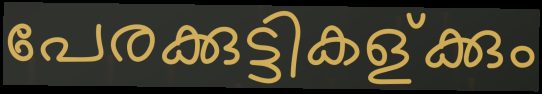
പേരക്കുട്ടികള്ക്കും